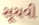
સૂચવી